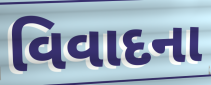
વિવાદના